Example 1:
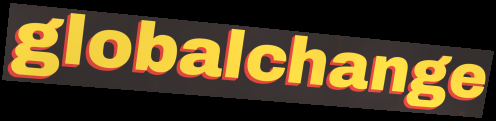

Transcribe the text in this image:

globalchange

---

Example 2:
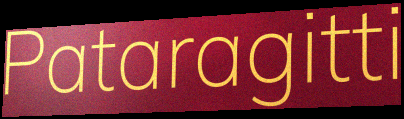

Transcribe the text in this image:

Pataragitti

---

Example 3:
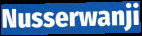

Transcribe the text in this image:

Nusserwanji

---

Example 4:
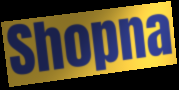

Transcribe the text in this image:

Shopna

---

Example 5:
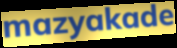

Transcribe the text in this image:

mazyakade